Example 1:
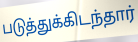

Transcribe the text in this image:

படுத்துக்கிடந்தார்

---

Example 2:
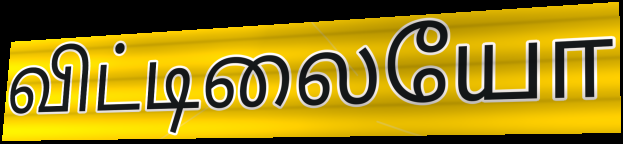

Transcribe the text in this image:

விட்டிலையோ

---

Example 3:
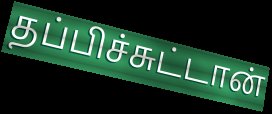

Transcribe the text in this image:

தப்பிச்சுட்டான்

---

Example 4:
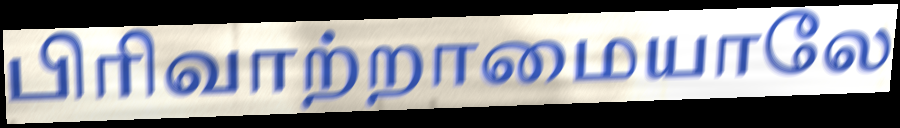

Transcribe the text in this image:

பிரிவாற்றாமையாலே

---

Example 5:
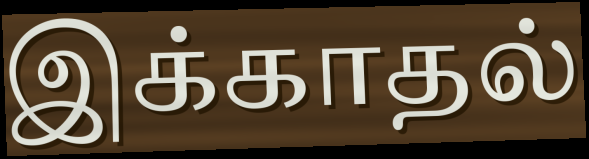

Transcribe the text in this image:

இக்காதல்